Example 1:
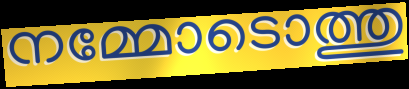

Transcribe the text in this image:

നമ്മോടൊത്തു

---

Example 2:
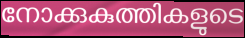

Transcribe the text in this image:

നോക്കുകുത്തികളുടെ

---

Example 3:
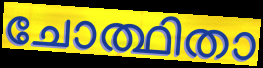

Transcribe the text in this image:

ചോത്ഥിതാ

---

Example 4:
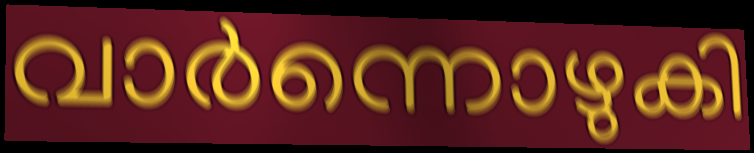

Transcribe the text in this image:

വാർന്നൊഴുകി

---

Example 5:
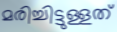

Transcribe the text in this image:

മരിച്ചിട്ടുള്ളത്